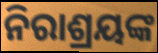
ନିରାଶ୍ରୟଙ୍କ